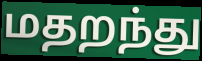
மதறந்து